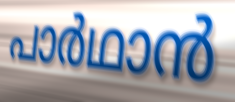
പാർഥാൻ